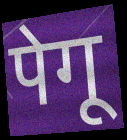
पेगू